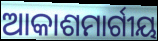
ଆକାଶମାର୍ଗୀୟ